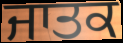
ਜਾਤਕ